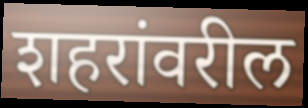
शहरांवरील